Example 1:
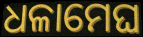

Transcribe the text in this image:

ଧଳାମେଘ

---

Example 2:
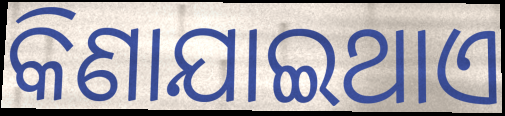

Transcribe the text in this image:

କିଣାଯାଇଥାଏ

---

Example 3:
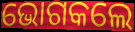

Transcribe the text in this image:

ଭୋଗକଲେ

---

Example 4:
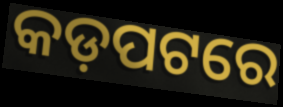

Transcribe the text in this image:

କଡ଼ପଟରେ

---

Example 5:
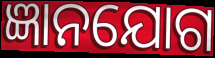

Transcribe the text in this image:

ଜ୍ଞାନଯୋଗ